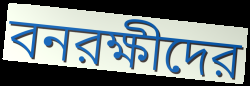
বনরক্ষীদের